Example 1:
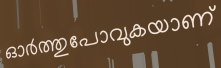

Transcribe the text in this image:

ഓർത്തുപോവുകയാണ്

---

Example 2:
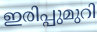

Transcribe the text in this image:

ഇരിപ്പുമുറി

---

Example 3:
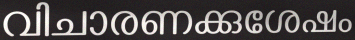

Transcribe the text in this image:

വിചാരണക്കുശേഷം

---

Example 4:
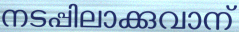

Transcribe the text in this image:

നടപ്പിലാക്കുവാന്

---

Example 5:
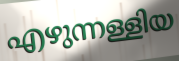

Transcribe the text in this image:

എഴുന്നള്ളിയ